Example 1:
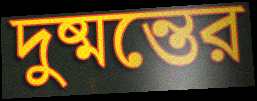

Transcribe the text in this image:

দুষ্মন্তের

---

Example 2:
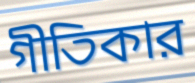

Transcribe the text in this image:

গীতিকার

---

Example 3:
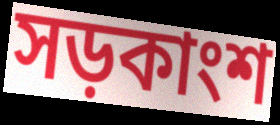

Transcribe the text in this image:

সড়কাংশ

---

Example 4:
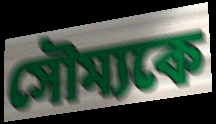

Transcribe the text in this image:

সৌম্যকে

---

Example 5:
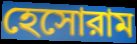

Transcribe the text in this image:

হেসোরাম